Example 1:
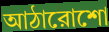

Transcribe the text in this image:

আঠারোশো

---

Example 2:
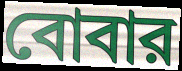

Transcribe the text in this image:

বোবার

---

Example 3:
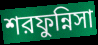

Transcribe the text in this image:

শরফুন্নিসা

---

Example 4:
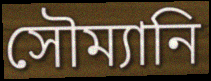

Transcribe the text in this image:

সৌম্যানি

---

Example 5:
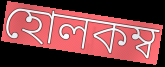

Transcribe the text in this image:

হোলকম্ব